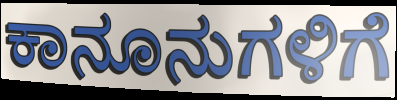
ಕಾನೂನುಗಳಿಗೆ